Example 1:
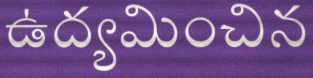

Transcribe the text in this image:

ఉద్యమించిన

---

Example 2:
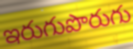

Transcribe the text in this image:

ఇరుగుపొరుగు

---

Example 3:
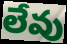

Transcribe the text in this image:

లేవు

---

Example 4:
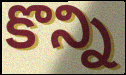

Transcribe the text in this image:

కొన్ని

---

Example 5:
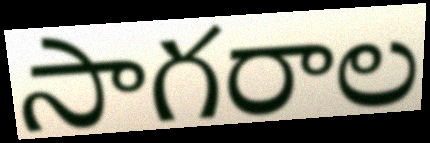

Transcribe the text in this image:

సాగరాల